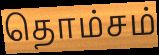
தொம்சம்